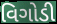
વિગોડી